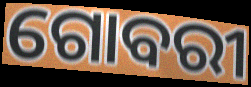
ଗୋବରୀ